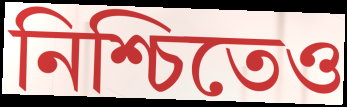
নিশ্চিতেও